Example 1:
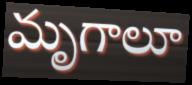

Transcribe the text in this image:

మృగాలూ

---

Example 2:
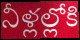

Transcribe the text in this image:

నీళ్లల్లోకి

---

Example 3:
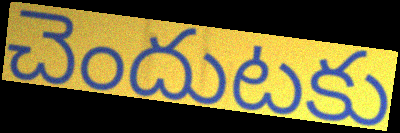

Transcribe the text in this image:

చెందుటకు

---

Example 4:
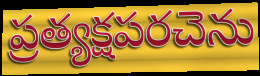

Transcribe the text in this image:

ప్రత్యక్షపరచెను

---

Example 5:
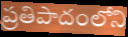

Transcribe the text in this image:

ప్రతిపాదంలోని